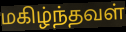
மகிழ்ந்தவள்